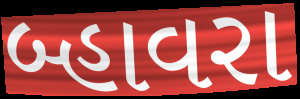
બ્હાવરા